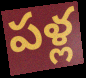
పళ్ల